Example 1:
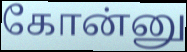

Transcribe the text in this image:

கோன்னு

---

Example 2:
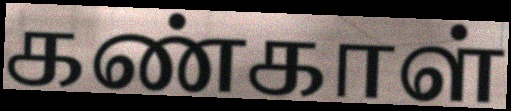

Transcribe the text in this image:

கண்காள்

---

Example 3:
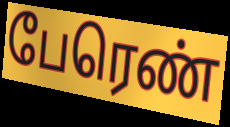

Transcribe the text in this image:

பேரெண்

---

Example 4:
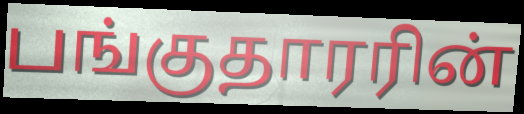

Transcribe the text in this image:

பங்குதாரரின்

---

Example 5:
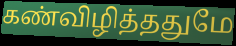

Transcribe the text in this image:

கண்விழித்ததுமே